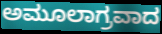
ಅಮೂಲಾಗ್ರವಾದ